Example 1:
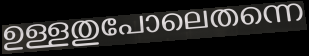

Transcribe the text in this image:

ഉള്ളതുപോലെതന്നെ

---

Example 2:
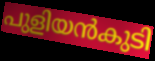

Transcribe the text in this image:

പുളിയൻകുടി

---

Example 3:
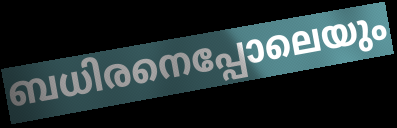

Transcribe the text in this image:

ബധിരനെപ്പോലെയും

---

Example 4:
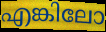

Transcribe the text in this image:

എങ്കിലോ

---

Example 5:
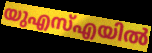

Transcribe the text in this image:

യുഎസ്എയിൽ